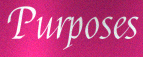
Purposes